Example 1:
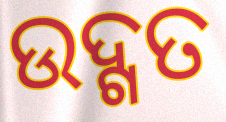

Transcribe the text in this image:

ଉଦ୍ଗତ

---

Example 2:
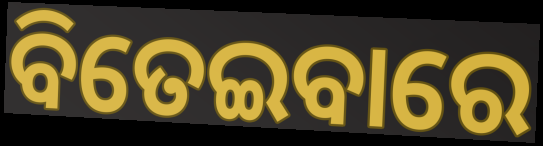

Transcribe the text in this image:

ବିତେଇବାରେ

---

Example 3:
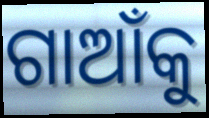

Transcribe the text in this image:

ଗାଆଁକୁ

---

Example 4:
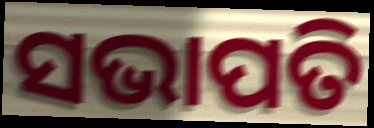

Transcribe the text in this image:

ସଭାପତି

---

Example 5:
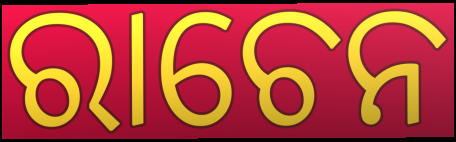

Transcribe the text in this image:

ରାଚେନ